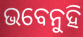
ଭବେନୁହି